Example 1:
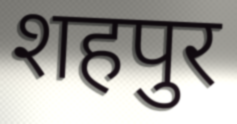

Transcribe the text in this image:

शहपुर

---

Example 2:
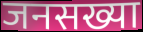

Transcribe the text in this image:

जनसख्या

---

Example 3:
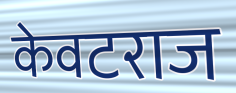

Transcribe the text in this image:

केवटराज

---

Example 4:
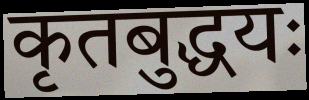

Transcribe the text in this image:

कृतबुद्धयः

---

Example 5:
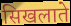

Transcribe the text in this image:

सिखलाते